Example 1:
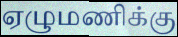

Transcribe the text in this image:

ஏழுமணிக்கு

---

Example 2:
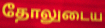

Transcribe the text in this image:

தோலுடைய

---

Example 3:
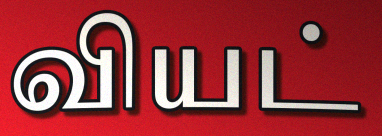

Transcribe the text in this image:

வியட்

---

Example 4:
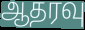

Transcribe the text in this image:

ஆதரவு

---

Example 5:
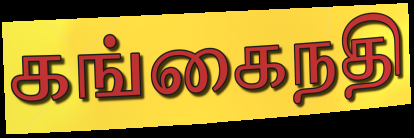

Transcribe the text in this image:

கங்கைநதி